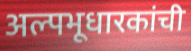
अल्पभूधारकांची